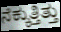
ನೆಕ್ಕುತ್ತಿತ್ತು